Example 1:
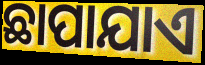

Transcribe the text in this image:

ଛାପାଯାଏ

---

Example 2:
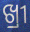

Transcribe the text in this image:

ଖ୍ରୀ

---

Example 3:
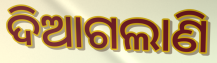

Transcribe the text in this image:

ଦିଆଗଲାଣି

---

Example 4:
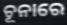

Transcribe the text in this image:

ଚୂନାରେ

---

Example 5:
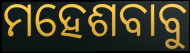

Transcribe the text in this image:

ମହେଶବାବୁ